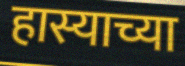
हास्याच्या